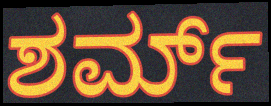
ಶರ್ಮ್